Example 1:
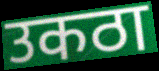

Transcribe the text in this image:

उकठा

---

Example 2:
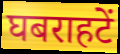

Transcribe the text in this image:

घबराहटें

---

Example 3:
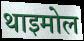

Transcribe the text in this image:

थाइमोल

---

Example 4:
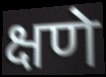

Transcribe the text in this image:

क्षणे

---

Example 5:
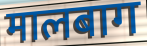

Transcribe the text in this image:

मालबाग